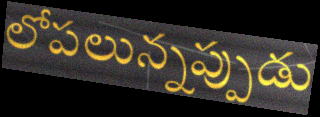
లోపలున్నప్పుడు